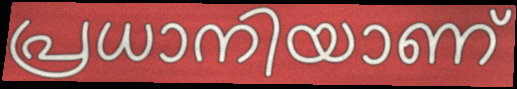
പ്രധാനിയാണ്